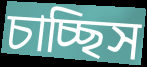
চাচ্ছিস